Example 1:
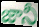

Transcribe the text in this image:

జానీ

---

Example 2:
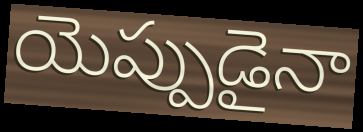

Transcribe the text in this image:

యెప్పుడైనా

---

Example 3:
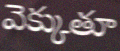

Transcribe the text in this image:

వెక్కుతూ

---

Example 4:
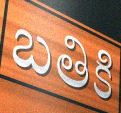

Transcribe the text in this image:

బతికి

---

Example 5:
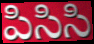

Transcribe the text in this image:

పిసిసి